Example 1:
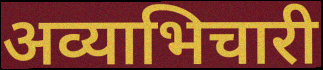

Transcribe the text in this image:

अव्याभिचारी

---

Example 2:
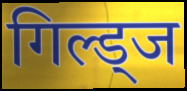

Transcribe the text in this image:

गिल्ड्ज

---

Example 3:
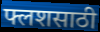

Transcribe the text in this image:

फ्लशसाठी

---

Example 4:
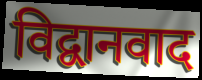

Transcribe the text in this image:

विद्वानवाद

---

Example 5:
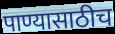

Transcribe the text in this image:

पाण्यासाठीच